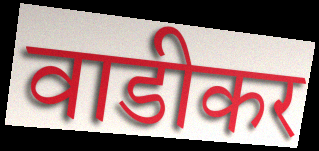
वाडीकर